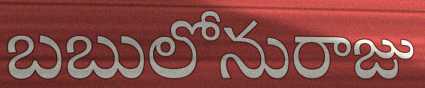
బబులోనురాజు